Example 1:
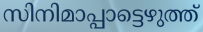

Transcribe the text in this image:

സിനിമാപ്പാട്ടെഴുത്ത്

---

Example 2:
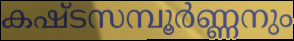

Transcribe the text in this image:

കഷ്ടസമ്പൂർണ്ണനും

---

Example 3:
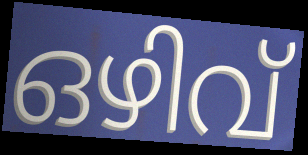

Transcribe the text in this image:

ഒഴിവ്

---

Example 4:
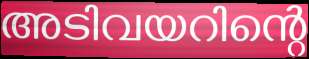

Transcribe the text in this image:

അടിവയറിന്റെ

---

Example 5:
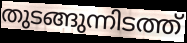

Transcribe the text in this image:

തുടങ്ങുന്നിടത്ത്